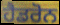
ਹੈਡਰੋਨ